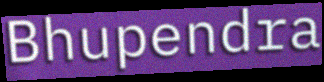
Bhupendra